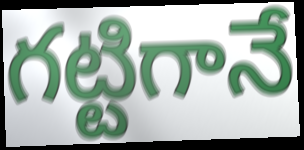
గట్టిగానే